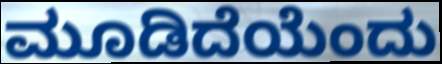
ಮೂಡಿದೆಯೆಂದು